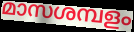
മാസശമ്പളം